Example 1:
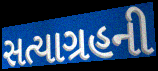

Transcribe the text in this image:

સત્યાગ્રહની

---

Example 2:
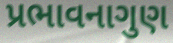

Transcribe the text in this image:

પ્રભાવનાગુણ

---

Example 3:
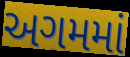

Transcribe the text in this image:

અગમમાં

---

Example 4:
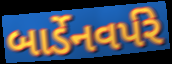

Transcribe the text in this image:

બાર્ડેનવર્પરે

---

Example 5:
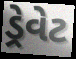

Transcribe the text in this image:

ડ્રેવેટ